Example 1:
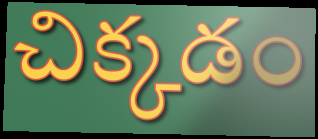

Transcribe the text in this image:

చిక్కడం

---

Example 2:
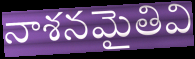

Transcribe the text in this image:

నాశనమైతివి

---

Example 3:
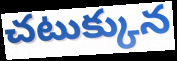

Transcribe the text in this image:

చటుక్కున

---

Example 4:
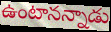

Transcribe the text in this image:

ఉంటానన్నాడు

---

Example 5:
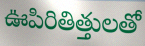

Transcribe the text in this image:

ఊపిరితిత్తులతో